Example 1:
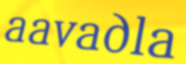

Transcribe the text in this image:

aavadla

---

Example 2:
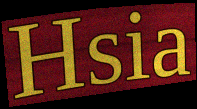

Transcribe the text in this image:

Hsia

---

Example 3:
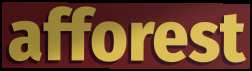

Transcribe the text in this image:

afforest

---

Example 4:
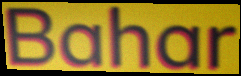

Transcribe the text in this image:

Bahar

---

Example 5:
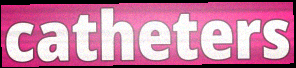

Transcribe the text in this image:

catheters